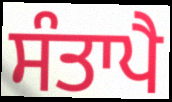
ਸੰਤਾਪੈ